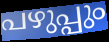
പഴുപ്പും